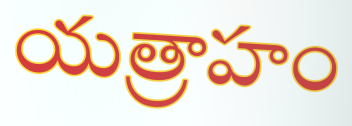
యత్రాహం